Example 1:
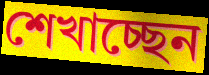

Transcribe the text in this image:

শেখাচ্ছেন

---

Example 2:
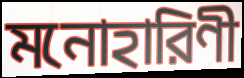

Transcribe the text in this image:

মনোহারিণী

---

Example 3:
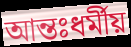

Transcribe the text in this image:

আন্তঃধর্মীয়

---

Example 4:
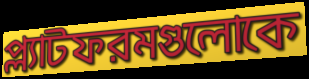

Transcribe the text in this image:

প্ল্যাটফরমগুলোকে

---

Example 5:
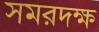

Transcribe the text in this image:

সমরদক্ষ